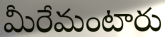
మీరేమంటారు